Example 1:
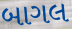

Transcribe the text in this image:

બાગલ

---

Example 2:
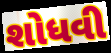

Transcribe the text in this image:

શોધવી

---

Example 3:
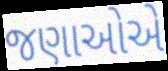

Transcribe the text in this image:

જણાઓએ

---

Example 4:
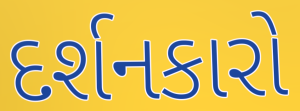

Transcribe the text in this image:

દર્શનકારો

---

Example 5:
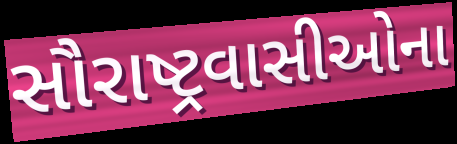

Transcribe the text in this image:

સૌરાષ્ટ્રવાસીઓના